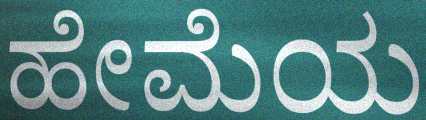
ಹೇಮೆಯ